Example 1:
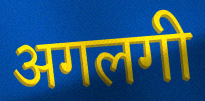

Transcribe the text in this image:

अगलगी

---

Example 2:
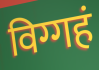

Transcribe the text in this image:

विग्गहं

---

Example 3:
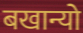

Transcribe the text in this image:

बखान्यो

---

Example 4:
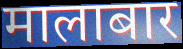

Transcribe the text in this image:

मालाबार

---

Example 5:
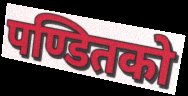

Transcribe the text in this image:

पण्डितको